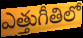
ఎత్తుగీతిలో